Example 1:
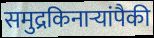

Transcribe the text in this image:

समुद्रकिनाऱ्यांपैकी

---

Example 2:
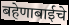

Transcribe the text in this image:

बहेणाबाईचे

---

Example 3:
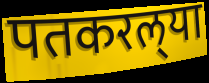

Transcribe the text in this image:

पतकरल्या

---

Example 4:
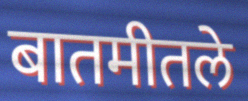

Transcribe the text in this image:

बातमीतले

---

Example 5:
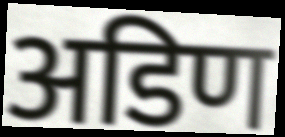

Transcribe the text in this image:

अडिण